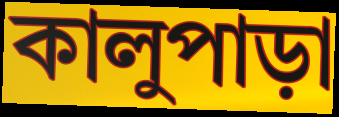
কালুপাড়া